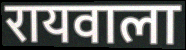
रायवाला